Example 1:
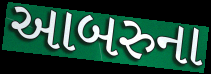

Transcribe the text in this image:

આબરુના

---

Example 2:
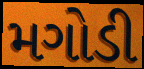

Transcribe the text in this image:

મગોડી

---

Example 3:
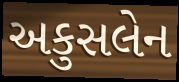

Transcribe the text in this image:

અકુસલેન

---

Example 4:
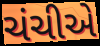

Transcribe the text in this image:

ચંચીએ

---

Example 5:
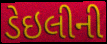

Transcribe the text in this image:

ડેઇલીની